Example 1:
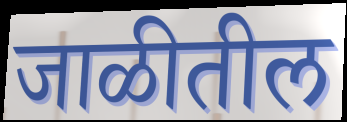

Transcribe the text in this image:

जाळीतील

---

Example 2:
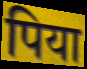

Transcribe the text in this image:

पिया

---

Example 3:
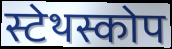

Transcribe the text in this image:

स्टेथस्कोप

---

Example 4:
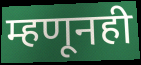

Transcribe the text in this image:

म्‍हणूनही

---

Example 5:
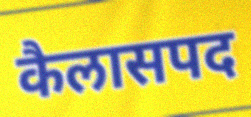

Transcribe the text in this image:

कैलासपद